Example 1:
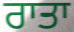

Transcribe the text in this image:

ਰਾਤਾ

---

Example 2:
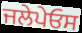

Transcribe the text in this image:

ਜਲੇਪੇਓਸ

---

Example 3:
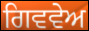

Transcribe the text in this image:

ਗਿਵਵੇਅ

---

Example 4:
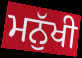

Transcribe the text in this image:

ਮਨੁੱਖੀ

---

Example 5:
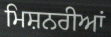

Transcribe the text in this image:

ਮਿਸ਼ਨਰੀਆਂ